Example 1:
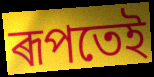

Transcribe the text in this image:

ৰূপতেই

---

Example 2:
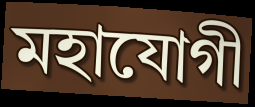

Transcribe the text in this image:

মহাযোগী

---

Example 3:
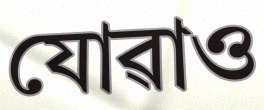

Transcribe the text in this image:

যোৱাও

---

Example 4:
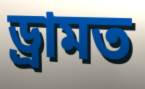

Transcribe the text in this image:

ড্ৰামত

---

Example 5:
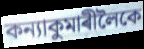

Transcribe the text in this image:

কন্যাকুমাৰীলৈকে